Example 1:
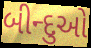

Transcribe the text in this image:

બીન્દુઓ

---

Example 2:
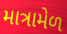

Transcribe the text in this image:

માત્રામેળ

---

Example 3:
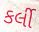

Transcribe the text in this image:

કર્લી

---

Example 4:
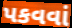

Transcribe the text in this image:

પકવવાં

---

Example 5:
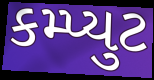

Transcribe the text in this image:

કમ્પ્યુટ